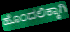
ಹೊಂದಲಿಕ್ಕಾಗಿ